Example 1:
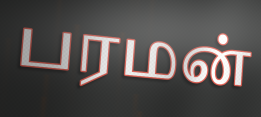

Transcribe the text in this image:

பரமன்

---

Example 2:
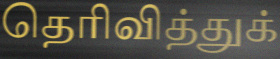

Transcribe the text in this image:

தெரிவித்துக்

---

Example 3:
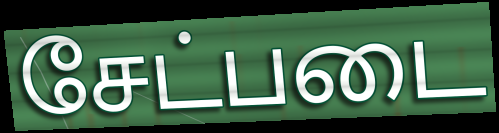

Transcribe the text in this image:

சேட்படை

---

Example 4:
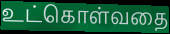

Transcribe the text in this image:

உட்கொள்வதை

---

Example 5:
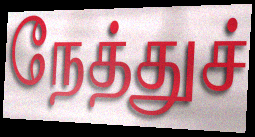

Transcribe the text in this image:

நேத்துச்